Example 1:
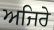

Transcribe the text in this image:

ਅਜਿਰੇ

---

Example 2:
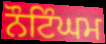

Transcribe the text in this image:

ਨੌਟਿੰਘਮ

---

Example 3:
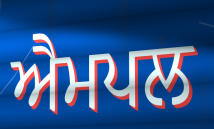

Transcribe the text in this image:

ਐਮਪਲ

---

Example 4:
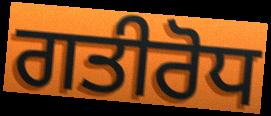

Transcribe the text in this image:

ਗਤੀਰੋਧ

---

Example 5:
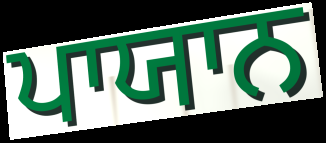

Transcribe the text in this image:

ਪਾਯਾਨ